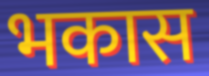
भकास